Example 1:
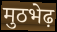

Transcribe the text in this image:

मुठभेढ़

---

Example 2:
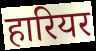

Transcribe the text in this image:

हारियर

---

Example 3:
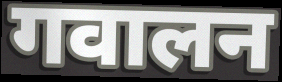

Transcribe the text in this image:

गवालन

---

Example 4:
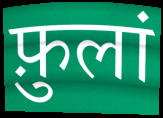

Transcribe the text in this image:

फ़ुलां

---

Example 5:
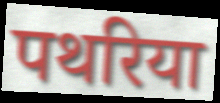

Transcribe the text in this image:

पथरिया